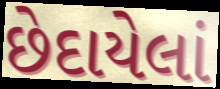
છેદાયેલાં